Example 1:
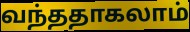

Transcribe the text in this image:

வந்ததாகலாம்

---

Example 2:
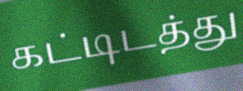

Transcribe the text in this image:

கட்டிடத்து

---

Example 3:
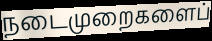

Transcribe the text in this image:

நடைமுறைகளைப்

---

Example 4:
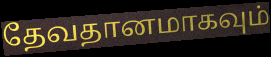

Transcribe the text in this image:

தேவதானமாகவும்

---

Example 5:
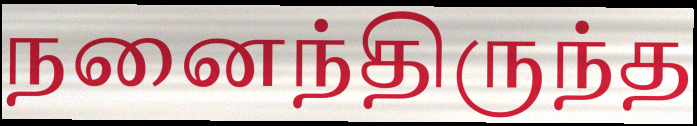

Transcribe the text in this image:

நனைந்திருந்த